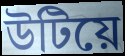
উটিয়ে